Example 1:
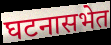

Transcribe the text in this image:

घटनासभेत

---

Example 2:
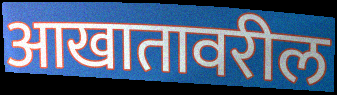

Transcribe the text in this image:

आखातावरील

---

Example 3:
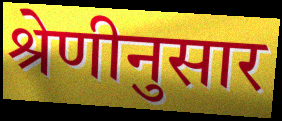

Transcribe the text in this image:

श्रेणीनुसार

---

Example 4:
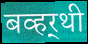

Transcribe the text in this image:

बव्हर्थी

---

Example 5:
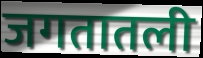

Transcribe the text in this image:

जगतातली